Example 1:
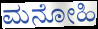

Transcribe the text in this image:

ಮನೋಹಿ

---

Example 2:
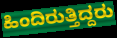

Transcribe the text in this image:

ಹಿಂದಿರುತ್ತಿದ್ದರು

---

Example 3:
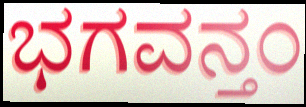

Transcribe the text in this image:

ಭಗವನ್ತಂ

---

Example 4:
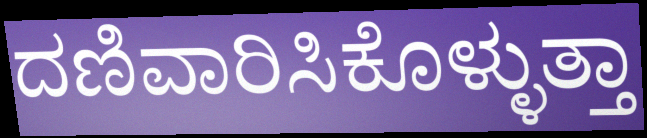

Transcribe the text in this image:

ದಣಿವಾರಿಸಿಕೊಳ್ಳುತ್ತಾ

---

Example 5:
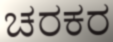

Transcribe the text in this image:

ಚರಕರ